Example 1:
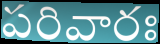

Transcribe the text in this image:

పరివారః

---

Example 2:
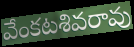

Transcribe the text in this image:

వేంకటశివరావు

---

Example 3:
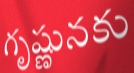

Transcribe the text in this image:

గృష్ణునకు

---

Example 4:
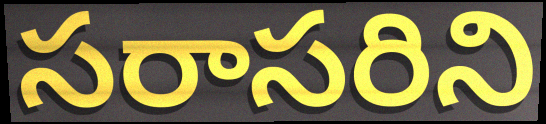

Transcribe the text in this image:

సరాసరిని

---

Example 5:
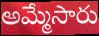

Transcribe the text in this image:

అమ్మేసారు